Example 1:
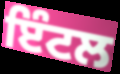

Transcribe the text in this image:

ਇੰਟਲ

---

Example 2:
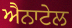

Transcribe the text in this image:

ਐਨਾਟੇਲ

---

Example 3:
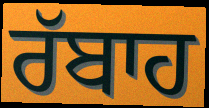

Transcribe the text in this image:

ਰੱਬਾਹ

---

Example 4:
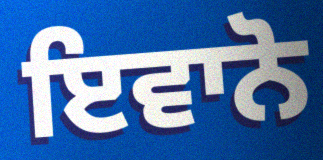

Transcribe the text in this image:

ਇਵਾਨੋ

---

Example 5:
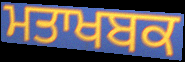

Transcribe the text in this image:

ਮਤਾਖਬਕ